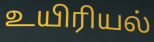
உயிரியல்